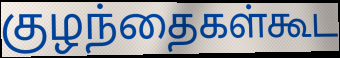
குழந்தைகள்கூட